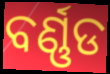
ବର୍ଣ୍ଣଡ